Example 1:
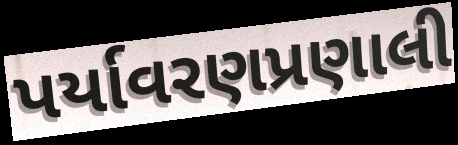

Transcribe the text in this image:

પર્યાવરણપ્રણાલી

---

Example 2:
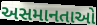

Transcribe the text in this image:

અસમાનતાઓ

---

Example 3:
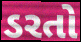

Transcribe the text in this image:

ડરતો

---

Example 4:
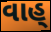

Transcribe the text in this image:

વાહ્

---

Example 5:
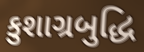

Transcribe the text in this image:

કુશાગ્રબુદ્ધિ